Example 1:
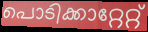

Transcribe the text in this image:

പൊടിക്കാറ്റേറ്റ്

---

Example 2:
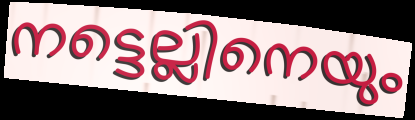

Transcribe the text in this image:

നട്ടെല്ലിനെയും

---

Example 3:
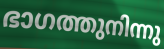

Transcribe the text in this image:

ഭാഗത്തുനിന്നു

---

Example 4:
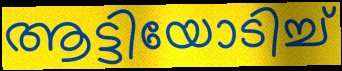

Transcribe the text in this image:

ആട്ടിയോടിച്ച്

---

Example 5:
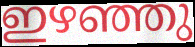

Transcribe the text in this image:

ഇഴഞ്ഞു